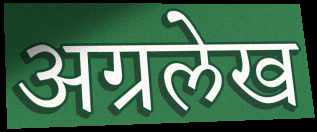
अग्रलेख